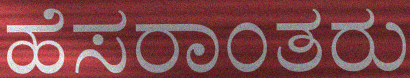
ಹೆಸರಾಂತರು